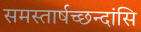
समस्तार्षच्छन्दांसि